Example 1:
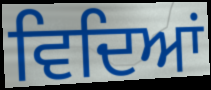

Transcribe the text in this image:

ਵਿਦਿਆਂ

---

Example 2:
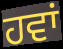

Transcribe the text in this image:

ਹਵਾਂ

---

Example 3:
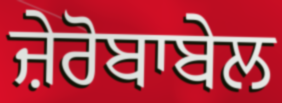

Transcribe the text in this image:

ਜ਼ੇਰੋਬਾਬੇਲ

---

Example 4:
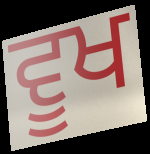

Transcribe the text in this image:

ਵੂਖ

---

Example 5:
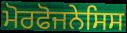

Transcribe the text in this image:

ਮੋਰਫੋਜਨੇਸਿਸ